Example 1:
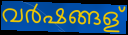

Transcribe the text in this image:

വർഷങ്ങള്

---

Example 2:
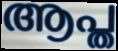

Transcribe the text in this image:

ആപ്ത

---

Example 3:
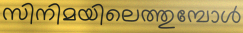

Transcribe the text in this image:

സിനിമയിലെത്തുമ്പോൾ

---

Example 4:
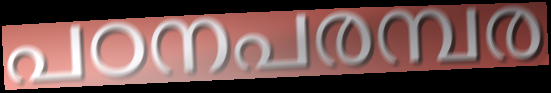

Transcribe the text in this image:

പഠനപരമ്പര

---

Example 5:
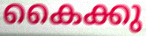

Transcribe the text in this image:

കൈക്കു